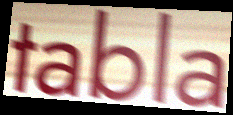
tabla